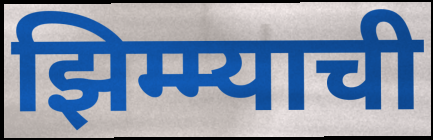
झिम्म्याची